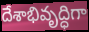
దేశాభివృద్ధిగా